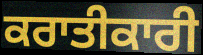
ਕਰਾਤੀਕਾਰੀ